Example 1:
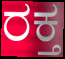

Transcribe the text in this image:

ರಕ್ತ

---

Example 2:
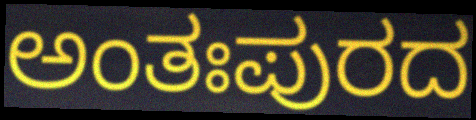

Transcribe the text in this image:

ಅಂತಃಪುರದ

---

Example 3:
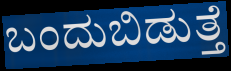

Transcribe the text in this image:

ಬಂದುಬಿಡುತ್ತೆ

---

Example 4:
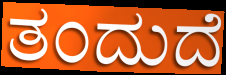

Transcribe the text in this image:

ತಂದುದೆ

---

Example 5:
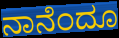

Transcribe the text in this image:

ನಾನೆಂದೂ